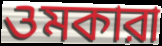
ওমকারা